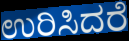
ಉರಿಸಿದರೆ